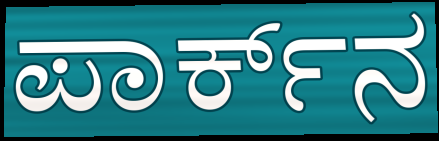
ಪಾರ್ಕ್‌ನ